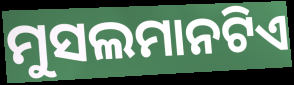
ମୁସଲମାନଟିଏ